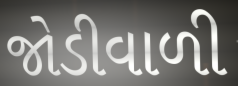
જોડીવાળી